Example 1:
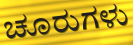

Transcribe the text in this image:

ಚೂರುಗಳು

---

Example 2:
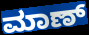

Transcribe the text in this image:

ಮಾಣ್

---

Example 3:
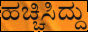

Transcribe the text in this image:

ಹಚ್ಚಿಸಿದ್ದು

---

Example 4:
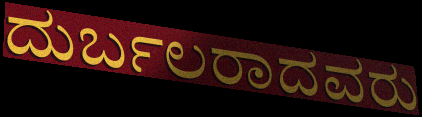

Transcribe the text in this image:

ದುರ್ಬಲರಾದವರು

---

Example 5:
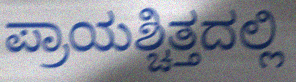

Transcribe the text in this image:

ಪ್ರಾಯಶ್ಚಿತ್ತದಲ್ಲಿ